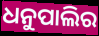
ଧନୁପାଲିର